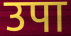
उपा